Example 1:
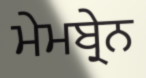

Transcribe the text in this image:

ਮੇਮਬ੍ਰੇਨ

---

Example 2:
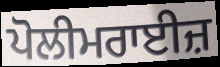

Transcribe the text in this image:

ਪੋਲੀਮਰਾਈਜ਼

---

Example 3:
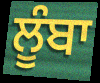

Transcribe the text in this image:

ਲੂੰਬਾ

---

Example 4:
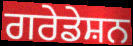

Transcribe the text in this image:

ਗਰੇਡੇਸ਼ਨ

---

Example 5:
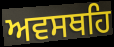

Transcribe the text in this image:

ਅਵਸਥਹਿ